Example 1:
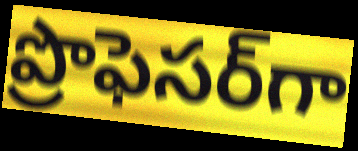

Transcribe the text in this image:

ప్రొఫెసర్‌గా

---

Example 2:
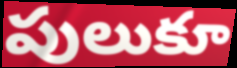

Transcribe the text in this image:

పులుకూ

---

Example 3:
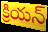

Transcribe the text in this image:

క్రియన్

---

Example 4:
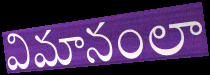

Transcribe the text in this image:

విమానంలా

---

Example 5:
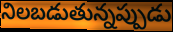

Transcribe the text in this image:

నిలబడుతున్నప్పుడు